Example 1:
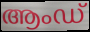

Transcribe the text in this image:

ആംഡ്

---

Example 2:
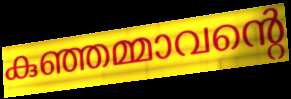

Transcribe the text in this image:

കുഞ്ഞമ്മാവന്റെ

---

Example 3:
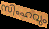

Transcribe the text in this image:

സിംഹവും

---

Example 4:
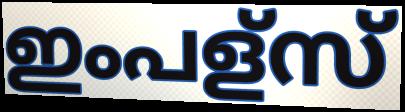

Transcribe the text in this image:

ഇംപള്സ്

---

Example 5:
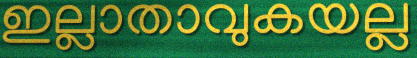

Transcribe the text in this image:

ഇല്ലാതാവുകയല്ല